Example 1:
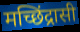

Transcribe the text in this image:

मच्छिंद्रासी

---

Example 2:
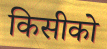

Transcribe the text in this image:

किसीको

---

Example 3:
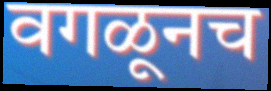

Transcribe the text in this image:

वगळूनच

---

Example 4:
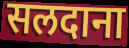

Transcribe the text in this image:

सलदाना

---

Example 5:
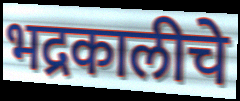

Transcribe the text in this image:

भद्रकालीचे